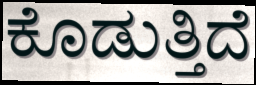
ಕೊಡುತ್ತಿದೆ